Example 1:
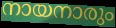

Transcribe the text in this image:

നായനാരും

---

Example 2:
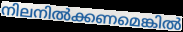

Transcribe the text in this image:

നിലനിൽക്കണമെങ്കിൽ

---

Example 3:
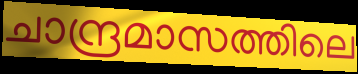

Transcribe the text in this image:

ചാന്ദ്രമാസത്തിലെ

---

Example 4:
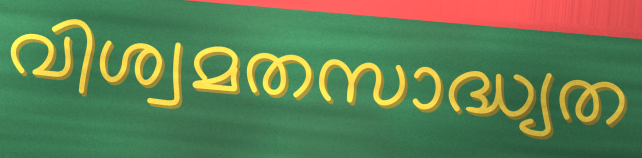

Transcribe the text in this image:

വിശ്വമതസാദ്ധ്യത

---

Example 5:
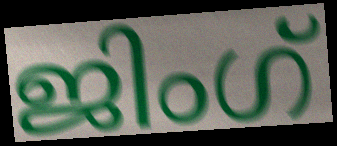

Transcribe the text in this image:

ജിംഗ്